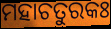
ମହାଚତୁରକଃ